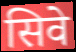
सिवे